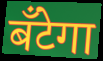
बँटेगा